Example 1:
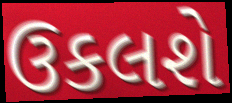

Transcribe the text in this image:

ઉકલશે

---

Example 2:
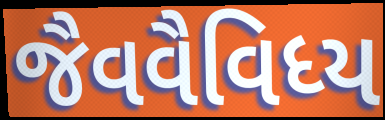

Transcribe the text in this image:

જૈવવૈવિધ્ય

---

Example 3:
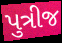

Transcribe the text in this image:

પુત્રીજ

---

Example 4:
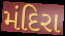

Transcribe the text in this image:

મંદિરા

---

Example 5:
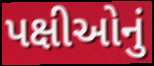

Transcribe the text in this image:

પક્ષીઓનું